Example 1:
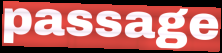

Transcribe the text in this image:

passage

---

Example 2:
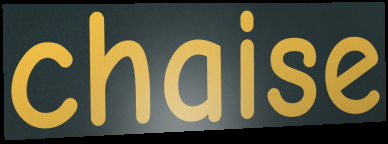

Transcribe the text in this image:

chaise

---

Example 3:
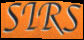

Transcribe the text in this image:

SIRS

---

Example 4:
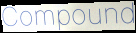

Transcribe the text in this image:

Compound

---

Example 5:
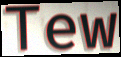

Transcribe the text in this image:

Tew